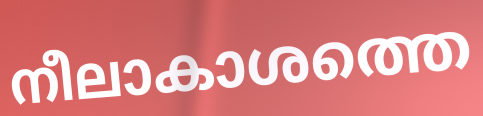
നീലാകാശത്തെ